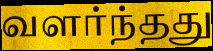
வளர்ந்தது